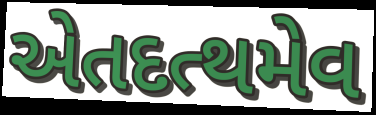
એતદત્થમેવ